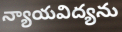
న్యాయవిద్యను